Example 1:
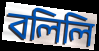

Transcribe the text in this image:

বলিলি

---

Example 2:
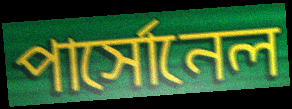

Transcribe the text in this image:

পার্সোনেল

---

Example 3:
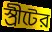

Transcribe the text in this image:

স্ত্রীটের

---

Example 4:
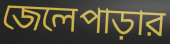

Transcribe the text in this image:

জেলেপাড়ার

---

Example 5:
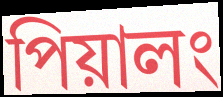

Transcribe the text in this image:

পিয়ালং